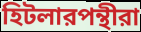
হিটলারপন্থীরা